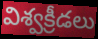
విశ్వక్రీడలు